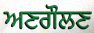
ਅਣਗੌਲਣ